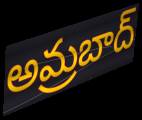
అమ్రబాద్